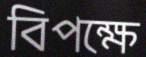
বিপক্ষে